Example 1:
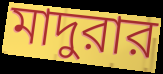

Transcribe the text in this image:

মাদুরার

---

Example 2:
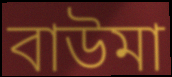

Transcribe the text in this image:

বাউমা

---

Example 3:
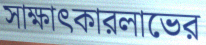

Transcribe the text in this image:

সাক্ষাৎকারলাভের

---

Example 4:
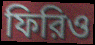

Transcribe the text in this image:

ফিরিও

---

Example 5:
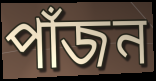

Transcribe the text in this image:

পাঁজন